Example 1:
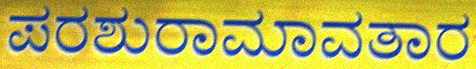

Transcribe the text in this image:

ಪರಶುರಾಮಾವತಾರ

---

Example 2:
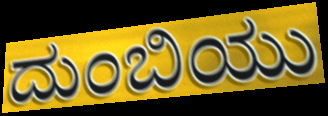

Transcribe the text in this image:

ದುಂಬಿಯು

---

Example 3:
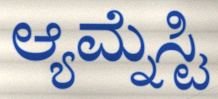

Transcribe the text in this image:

ಆ್ಯಮ್ನೆಸ್ಟಿ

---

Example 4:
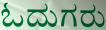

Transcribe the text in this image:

ಓದುಗರು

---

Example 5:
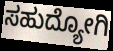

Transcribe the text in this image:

ಸಹುದ್ಯೋಗಿ